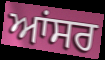
ਆਂਸਰ